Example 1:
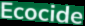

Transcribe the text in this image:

Ecocide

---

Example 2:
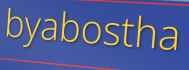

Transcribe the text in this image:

byabostha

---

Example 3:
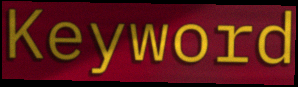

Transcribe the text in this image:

Keyword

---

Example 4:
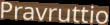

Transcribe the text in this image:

Pravruttio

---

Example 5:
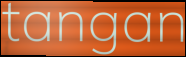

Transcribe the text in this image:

tangan